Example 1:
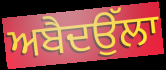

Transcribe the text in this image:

ਅਬੈਦਉੱਲਾ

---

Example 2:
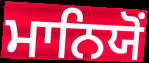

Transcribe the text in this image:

ਮਾਨਿਯੋਂ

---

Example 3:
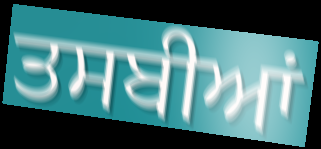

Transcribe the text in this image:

ਤਸਬੀਆਂ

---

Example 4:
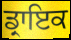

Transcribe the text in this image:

ਡ੍ਰਾਇਕ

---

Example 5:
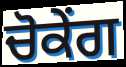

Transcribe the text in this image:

ਚੋਕੇਂਗ